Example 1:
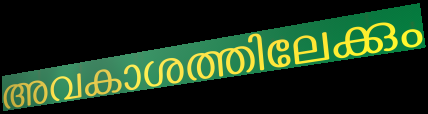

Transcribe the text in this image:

അവകാശത്തിലേക്കും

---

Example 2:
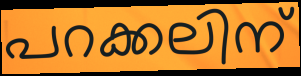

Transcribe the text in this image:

പറക്കലിന്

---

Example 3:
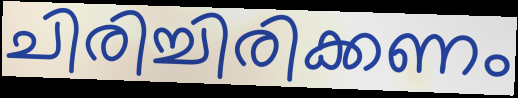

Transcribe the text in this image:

ചിരിച്ചിരിക്കണം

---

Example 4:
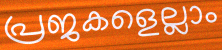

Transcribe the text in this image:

പ്രജകളെല്ലാം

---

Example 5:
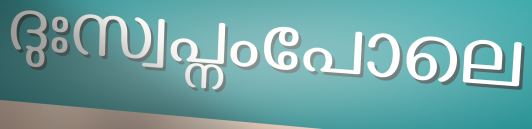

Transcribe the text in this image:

ദുഃസ്വപ്നംപോലെ